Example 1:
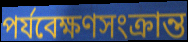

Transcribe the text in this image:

পর্যবেক্ষণসংক্রান্ত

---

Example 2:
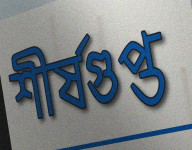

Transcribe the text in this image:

শীর্ষগুপ্ত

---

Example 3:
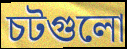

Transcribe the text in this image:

চটগুলো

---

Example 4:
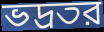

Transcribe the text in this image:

ভদ্রতর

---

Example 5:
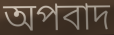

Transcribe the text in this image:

অপবাদ